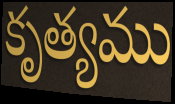
కృత్యము